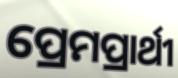
ପ୍ରେମପ୍ରାର୍ଥୀ